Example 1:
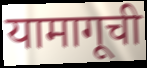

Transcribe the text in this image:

यामागूची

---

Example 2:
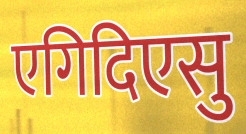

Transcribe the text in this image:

एगिदिएसु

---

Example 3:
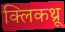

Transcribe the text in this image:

क्लिकथ्रू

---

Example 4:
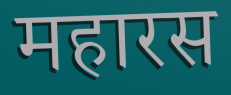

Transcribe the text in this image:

महारस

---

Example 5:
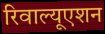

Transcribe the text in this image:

रिवाल्यूएशन